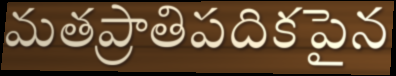
మతప్రాతిపదికపైన